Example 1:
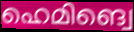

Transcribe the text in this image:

ഹെമിങ്വെ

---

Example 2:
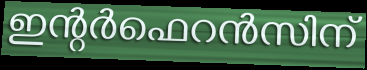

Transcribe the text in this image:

ഇന്റർഫെറൻസിന്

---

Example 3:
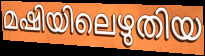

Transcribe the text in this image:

മഷിയിലെഴുതിയ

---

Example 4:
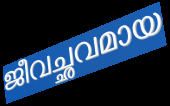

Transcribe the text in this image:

ജീവച്ഛവമായ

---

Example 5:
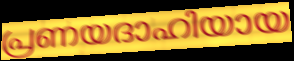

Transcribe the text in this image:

പ്രണയദാഹിയായ